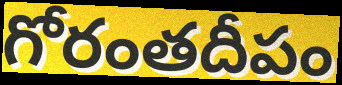
గోరంతదీపం